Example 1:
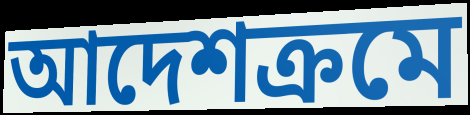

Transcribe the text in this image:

আদেশক্রমে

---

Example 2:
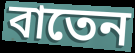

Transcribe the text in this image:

বাতেন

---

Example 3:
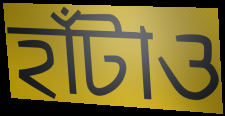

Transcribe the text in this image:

হাঁটাও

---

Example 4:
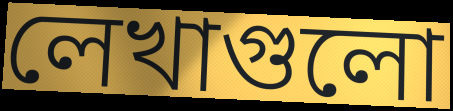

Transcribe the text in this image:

লেখাগুলো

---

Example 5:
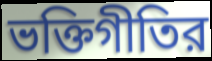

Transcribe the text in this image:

ভক্তিগীতির